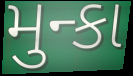
મુન્કા